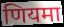
णियमा